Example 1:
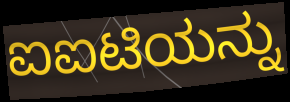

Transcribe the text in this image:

ಐಐಟಿಯನ್ನು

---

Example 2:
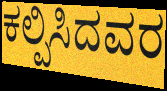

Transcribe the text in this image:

ಕಲ್ಪಿಸಿದವರ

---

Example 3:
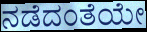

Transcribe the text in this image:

ನಡೆದಂತೆಯೇ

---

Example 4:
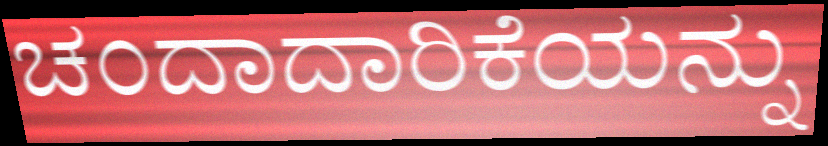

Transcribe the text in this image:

ಚಂದಾದಾರಿಕೆಯನ್ನು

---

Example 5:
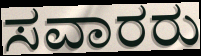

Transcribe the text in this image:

ಸವಾರರು